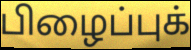
பிழைப்புக்